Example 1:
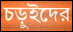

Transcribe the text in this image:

চড়ুইদের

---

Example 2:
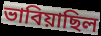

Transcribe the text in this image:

ভাবিয়াছিল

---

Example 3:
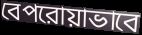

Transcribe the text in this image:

বেপরোয়াভাবে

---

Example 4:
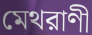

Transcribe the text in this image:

মেথরাণী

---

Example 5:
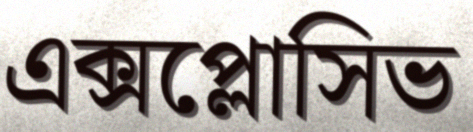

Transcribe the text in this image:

এক্সপ্লোসিভ